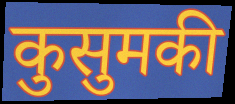
कुसुमकी